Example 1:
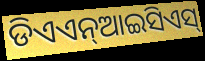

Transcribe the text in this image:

ଡିଏଏନ୍ଆଇସିଏସ୍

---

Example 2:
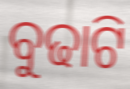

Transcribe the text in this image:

ବୁଢାଟି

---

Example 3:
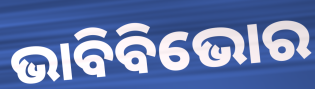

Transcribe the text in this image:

ଭାବିବିଭୋର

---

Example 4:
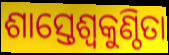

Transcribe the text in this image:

ଶାସ୍ତେଶ୍ବକୁଣ୍ଠିତା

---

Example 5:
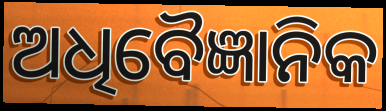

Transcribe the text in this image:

ଅଧିବୈଜ୍ଞାନିକ